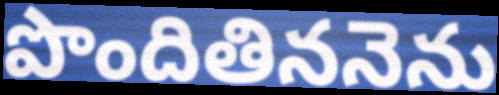
పొందితిననెను